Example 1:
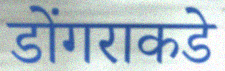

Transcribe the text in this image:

डोंगराकडे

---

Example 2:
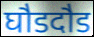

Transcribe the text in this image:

घौडदौड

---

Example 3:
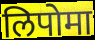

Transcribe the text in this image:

लिपोमा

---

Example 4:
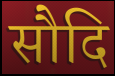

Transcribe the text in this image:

सौदि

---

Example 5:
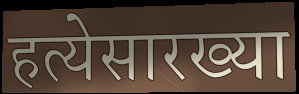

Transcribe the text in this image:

हत्येसारख्या